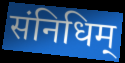
संनिधिम्